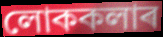
লোককলাৰ